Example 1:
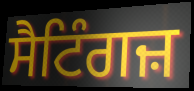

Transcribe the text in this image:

ਸੈਟਿੰਗਜ਼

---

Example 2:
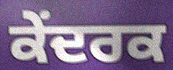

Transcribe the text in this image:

ਕੇਂਦਰਕ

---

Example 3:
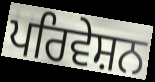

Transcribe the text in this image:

ਪਰਿਵੇਸ਼ਨ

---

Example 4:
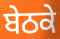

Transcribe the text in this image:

ਬੇਠਕੇ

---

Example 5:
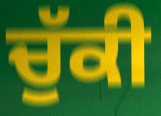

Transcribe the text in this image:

ਚੁੱਕੀ